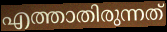
എത്താതിരുന്നത്